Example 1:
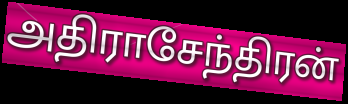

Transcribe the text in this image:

அதிராசேந்திரன்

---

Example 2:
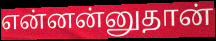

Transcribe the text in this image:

என்னன்னுதான்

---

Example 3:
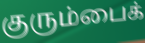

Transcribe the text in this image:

குரும்பைக்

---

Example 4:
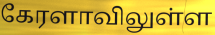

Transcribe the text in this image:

கேரளாவிலுள்ள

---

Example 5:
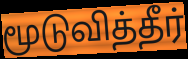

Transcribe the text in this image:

மூடுவித்தீர்